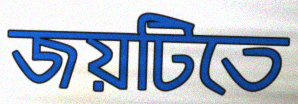
জয়টিতে